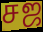
சஜ